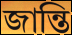
জান্তি